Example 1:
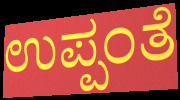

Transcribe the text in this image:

ಉಪ್ಪಂತೆ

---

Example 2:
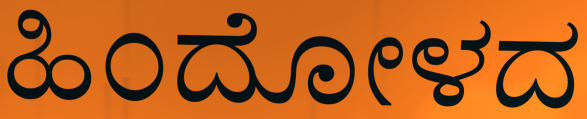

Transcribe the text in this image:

ಹಿಂದೋಳದ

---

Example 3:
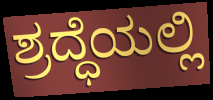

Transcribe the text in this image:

ಶ್ರದ್ಧೆಯಲ್ಲಿ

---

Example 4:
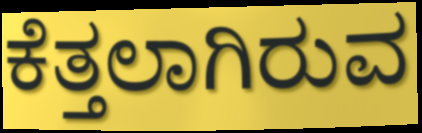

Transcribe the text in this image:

ಕೆತ್ತಲಾಗಿರುವ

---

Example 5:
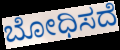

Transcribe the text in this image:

ಬೋಧಿಸದೆ